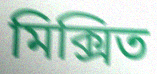
মিক্সিত